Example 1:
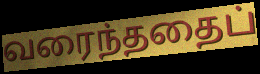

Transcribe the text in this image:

வரைந்ததைப்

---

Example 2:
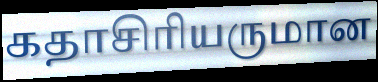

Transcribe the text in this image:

கதாசிரியருமான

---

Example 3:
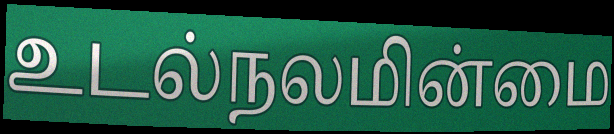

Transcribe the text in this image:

உடல்நலமின்மை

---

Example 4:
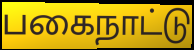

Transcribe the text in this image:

பகைநாட்டு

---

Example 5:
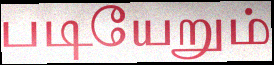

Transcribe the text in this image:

படியேறும்